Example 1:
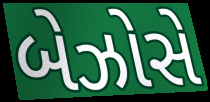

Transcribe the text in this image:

બેઝોસે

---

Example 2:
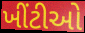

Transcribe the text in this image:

ખીંટીઓ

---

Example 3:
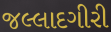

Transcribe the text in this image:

જલ્લાદગીરી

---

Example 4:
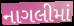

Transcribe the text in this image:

નાગલીમાં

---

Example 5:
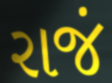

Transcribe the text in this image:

રાજં